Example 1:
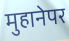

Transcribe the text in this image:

मुहानेपर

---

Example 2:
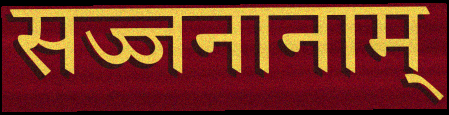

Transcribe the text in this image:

सज्जनानाम्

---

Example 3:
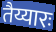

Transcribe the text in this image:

तैय्यारः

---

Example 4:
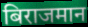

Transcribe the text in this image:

बिराजमान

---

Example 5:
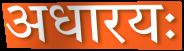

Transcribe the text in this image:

अधारयः